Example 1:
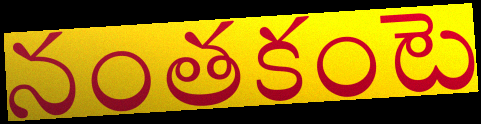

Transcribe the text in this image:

నంతకంటె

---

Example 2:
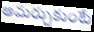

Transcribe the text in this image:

అమర్చుకుంటే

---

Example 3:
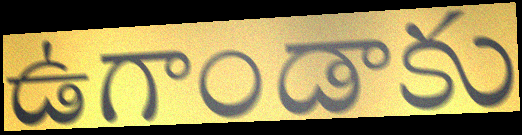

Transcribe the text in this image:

ఉగాండాకు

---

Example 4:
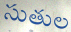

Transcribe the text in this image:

సుతుల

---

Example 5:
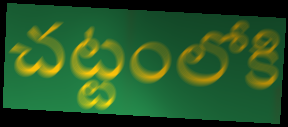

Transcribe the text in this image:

చట్టంలోకి